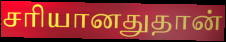
சரியானதுதான்